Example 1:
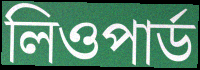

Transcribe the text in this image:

লিওপার্ড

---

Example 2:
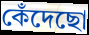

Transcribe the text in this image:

কেঁদেছো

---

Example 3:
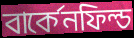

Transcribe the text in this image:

বার্কেনফিল্ড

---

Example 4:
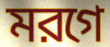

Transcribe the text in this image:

মরগে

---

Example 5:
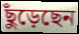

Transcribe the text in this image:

ছুঁড়েছেন